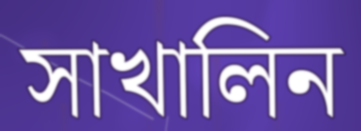
সাখালিন